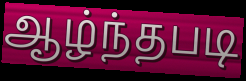
ஆழ்ந்தபடி